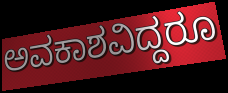
ಅವಕಾಶವಿದ್ದರೂ